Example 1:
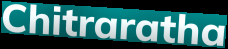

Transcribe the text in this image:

Chitraratha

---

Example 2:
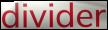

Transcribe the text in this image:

divider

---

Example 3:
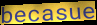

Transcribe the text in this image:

becasue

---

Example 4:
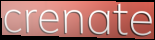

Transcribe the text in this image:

crenate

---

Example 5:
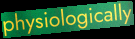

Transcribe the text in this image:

physiologically